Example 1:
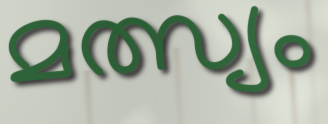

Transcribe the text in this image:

മത്സ്യം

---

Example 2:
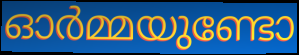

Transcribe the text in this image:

ഓർമ്മയുണ്ടോ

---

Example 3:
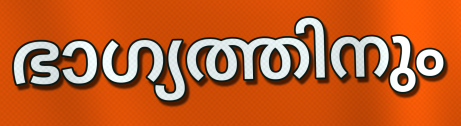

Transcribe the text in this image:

ഭാഗ്യത്തിനും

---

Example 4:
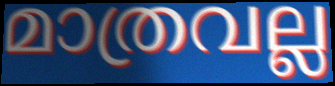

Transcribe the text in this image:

മാത്രവല്ല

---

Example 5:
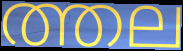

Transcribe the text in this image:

ത്തല